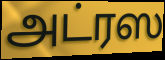
அட்ரஸ